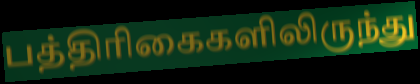
பத்திரிகைகளிலிருந்து